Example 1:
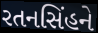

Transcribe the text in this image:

રતનસિંહને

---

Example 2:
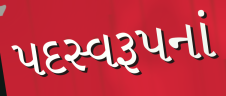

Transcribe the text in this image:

પદસ્વરૂપનાં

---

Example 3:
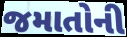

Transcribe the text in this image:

જમાતોની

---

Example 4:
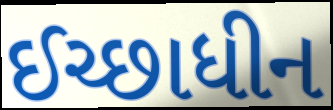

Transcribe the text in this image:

ઈચ્છાધીન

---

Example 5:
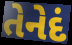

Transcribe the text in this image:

તેનેદં